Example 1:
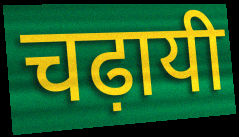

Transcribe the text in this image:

चढ़ायी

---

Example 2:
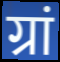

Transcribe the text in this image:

ग्रां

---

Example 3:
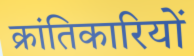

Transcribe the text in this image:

क्रांतिकारियों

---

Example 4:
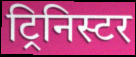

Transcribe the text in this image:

ट्रिनिस्टर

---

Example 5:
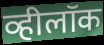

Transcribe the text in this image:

व्हीलॉक